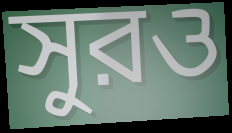
সুরও